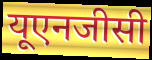
यूएनजीसी